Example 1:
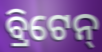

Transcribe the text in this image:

ବ୍ରିଟେନ୍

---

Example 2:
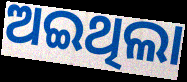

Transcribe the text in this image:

ଅଇଥିଲା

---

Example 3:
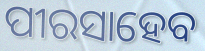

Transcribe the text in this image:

ପୀରସାହେବ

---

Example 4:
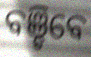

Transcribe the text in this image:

ବଞ୍ଚିବେ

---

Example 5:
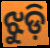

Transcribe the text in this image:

ଝୁଡ଼ି